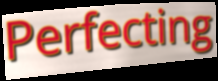
Perfecting